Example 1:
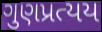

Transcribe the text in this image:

ગુણપ્રત્યય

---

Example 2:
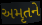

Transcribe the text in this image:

અમૃતને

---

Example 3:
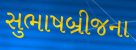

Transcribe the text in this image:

સુભાષબ્રીજના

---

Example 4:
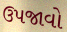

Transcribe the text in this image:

ઉપજાવો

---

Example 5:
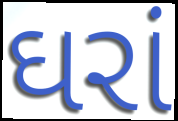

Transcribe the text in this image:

ઘરાં